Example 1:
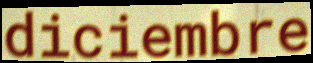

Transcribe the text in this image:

diciembre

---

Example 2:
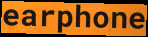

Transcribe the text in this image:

earphone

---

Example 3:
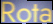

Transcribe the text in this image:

Rota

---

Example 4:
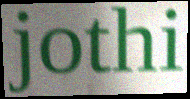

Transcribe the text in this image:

jothi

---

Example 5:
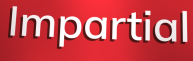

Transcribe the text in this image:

Impartial